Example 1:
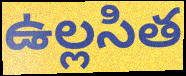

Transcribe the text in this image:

ఉల్లసిత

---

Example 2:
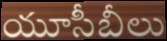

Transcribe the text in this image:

యూసీబీలు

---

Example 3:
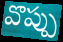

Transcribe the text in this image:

వొప్పు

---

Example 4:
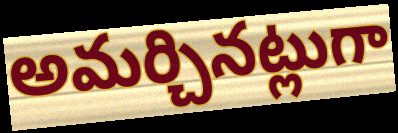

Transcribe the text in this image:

అమర్చినట్లుగా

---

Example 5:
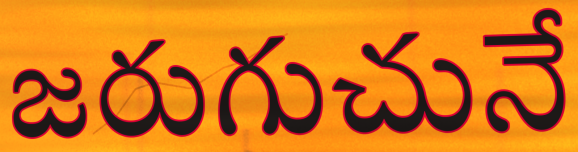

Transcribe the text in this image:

జరుగుచునే